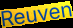
Reuven